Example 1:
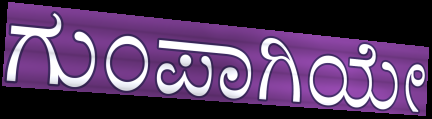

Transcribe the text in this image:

ಗುಂಪಾಗಿಯೇ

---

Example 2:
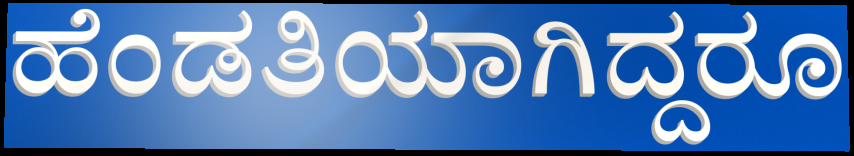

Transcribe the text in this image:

ಹೆಂಡತಿಯಾಗಿದ್ದರೂ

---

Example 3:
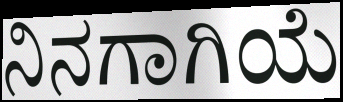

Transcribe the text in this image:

ನಿನಗಾಗಿಯೆ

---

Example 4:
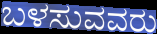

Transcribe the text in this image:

ಬಳಸುವವರು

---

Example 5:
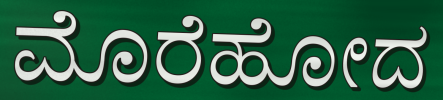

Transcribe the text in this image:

ಮೊರೆಹೋದ